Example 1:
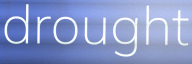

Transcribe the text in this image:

drought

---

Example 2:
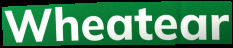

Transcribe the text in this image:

Wheatear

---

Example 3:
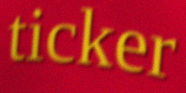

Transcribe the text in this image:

ticker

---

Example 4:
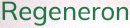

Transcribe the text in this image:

Regeneron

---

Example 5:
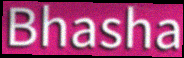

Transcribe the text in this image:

Bhasha